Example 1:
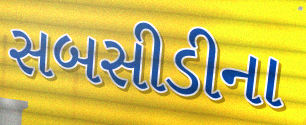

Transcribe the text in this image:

સબસીડીના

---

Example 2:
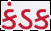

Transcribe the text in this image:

કંડક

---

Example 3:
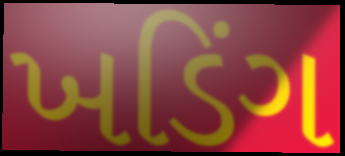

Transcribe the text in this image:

ખડિંગ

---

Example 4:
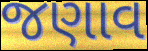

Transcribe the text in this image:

જણાવ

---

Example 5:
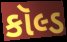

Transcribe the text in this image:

કૉલ્ડ